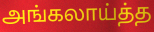
அங்கலாய்த்த